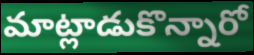
మాట్లాడుకొన్నారో